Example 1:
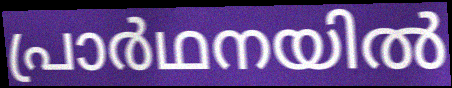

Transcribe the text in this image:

പ്രാർഥനയിൽ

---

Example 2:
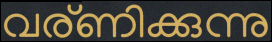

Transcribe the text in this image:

വര്ണിക്കുന്നു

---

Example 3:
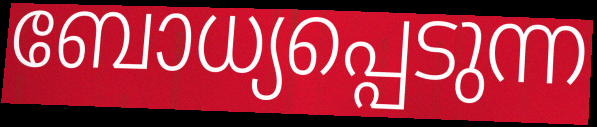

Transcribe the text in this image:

ബോധ്യപ്പെടുന്ന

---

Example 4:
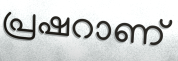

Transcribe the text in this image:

പ്രഷറാണ്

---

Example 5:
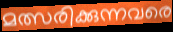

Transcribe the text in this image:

മത്സരിക്കുന്നവരെ